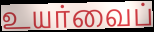
உயர்வைப்